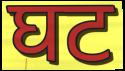
घट